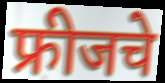
फ्रीजचे